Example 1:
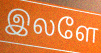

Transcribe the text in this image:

இலளே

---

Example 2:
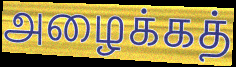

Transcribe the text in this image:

அழைக்கத்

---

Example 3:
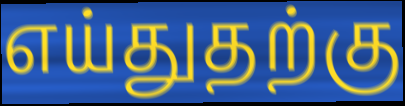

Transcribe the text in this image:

எய்துதற்கு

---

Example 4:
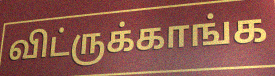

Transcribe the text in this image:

விட்ருக்காங்க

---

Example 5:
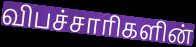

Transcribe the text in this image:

விபச்சாரிகளின்